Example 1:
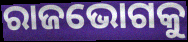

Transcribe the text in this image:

ରାଜଭୋଗକୁ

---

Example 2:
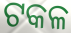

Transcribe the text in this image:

ଟକଳ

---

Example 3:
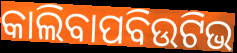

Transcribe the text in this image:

କାଲିବାପବିଉଟିଭ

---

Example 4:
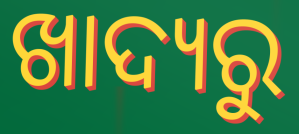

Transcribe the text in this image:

ଖାଦ୍ୟରୁ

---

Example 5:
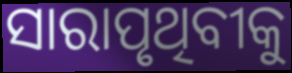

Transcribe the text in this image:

ସାରାପୃଥିବୀକୁ